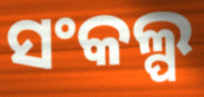
ସଂକଲ୍ପ